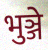
भुञ्जे